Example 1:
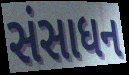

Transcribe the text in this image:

સંસાધન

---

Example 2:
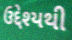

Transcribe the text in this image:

ઉદ્દેશ્યથી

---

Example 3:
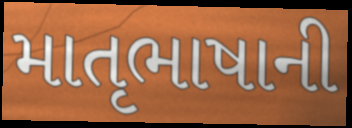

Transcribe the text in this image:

માતૃભાષાની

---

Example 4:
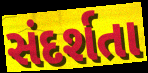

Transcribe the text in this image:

સંદર્શતા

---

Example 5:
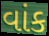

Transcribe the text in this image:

વાંક